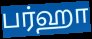
பர்ஹா